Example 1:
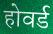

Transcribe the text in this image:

होवर्ड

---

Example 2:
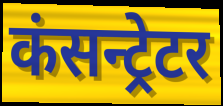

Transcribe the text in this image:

कंसन्ट्रेटर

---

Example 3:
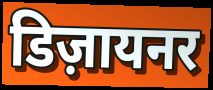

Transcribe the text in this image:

डिज़ायनर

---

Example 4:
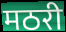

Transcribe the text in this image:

मठरी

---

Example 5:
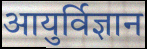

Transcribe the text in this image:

आयुर्विज्ञान